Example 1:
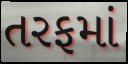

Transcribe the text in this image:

તરફમાં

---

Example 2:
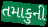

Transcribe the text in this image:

તમાકુની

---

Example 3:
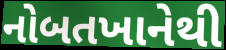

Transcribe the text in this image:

નોબતખાનેથી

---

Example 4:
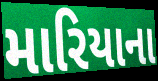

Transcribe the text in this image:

મારિયાના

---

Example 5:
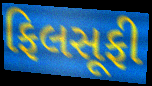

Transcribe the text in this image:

ફિલસૂફી